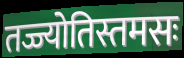
तज्ज्योतिस्तमसः